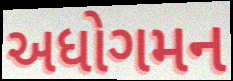
અધોગમન